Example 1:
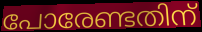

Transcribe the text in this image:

പോരേണ്ടതിന്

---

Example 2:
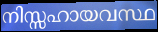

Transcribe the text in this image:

നിസ്സഹായവസ്ഥ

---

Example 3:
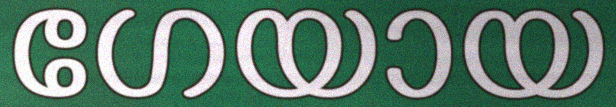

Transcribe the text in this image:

ഗേയായ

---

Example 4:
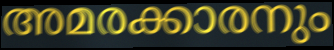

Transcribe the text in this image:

അമരക്കാരനും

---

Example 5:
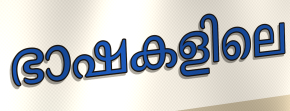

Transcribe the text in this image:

ഭാഷകളിലെ